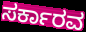
ಸರ್ಕಾರವ